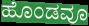
ಹೊಂಡವೂ